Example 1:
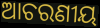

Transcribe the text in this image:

ଆଚରଣୀୟ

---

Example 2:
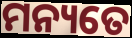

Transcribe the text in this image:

ମନ୍ୟତେ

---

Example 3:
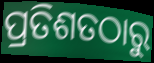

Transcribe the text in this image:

ପ୍ରତିଶତଠାରୁ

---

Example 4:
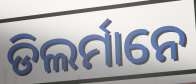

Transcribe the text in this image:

ଡିଲର୍ମାନେ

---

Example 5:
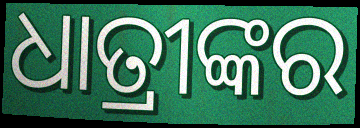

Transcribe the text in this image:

ଧାତ୍ରୀଙ୍କର